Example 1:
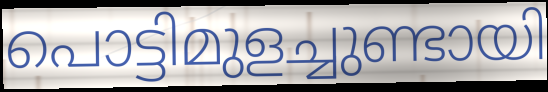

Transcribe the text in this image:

പൊട്ടിമുളച്ചുണ്ടായി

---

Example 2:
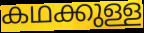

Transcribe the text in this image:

കഥക്കുള്ള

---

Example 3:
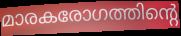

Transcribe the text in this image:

മാരകരോഗത്തിന്റെ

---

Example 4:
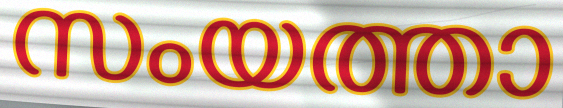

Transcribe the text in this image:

സംയത്താ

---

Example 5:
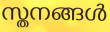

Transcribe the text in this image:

സ്തനങ്ങൾ